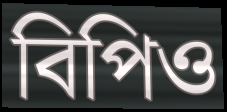
বিপিও